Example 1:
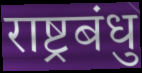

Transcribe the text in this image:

राष्ट्रबंधु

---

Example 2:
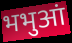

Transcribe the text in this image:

भभुआं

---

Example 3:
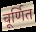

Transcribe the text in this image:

चूर्णित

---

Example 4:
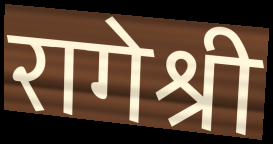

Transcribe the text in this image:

रागेश्री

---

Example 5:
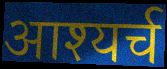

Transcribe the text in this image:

आश्यर्च